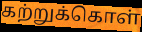
கற்றுக்கொள்